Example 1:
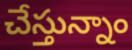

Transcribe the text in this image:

చేస్తున్నాం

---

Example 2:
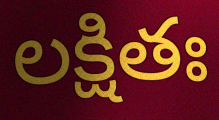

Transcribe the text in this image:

లక్షితః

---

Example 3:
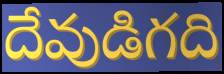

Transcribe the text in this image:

దేవుడిగది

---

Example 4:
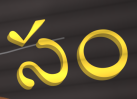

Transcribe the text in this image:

సం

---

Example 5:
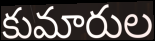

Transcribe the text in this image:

కుమారుల